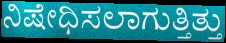
ನಿಷೇಧಿಸಲಾಗುತ್ತಿತ್ತು